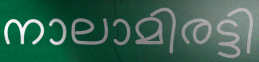
നാലാമിരട്ടി